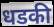
धडकी